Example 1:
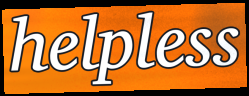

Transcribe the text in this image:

helpless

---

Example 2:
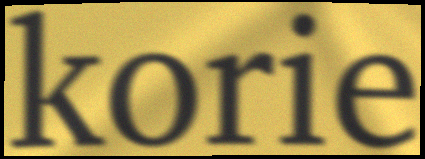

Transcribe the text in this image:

korie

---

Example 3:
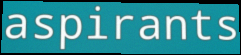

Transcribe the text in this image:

aspirants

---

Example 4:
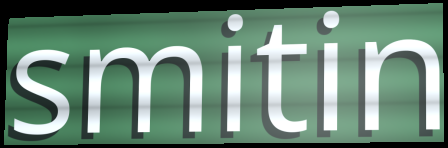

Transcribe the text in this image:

smitin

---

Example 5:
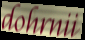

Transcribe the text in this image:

dohrnii